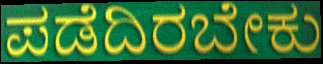
ಪಡೆದಿರಬೇಕು